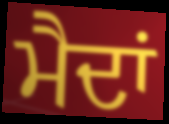
ਮੈਦਾਂ